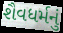
શૈવધર્મનું